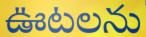
ఊటలను